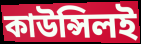
কাউন্সিলই